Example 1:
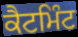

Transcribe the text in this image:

ਕੈਟਮਿੰਟ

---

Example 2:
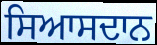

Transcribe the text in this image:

ਸਿਆਸਦਾਨ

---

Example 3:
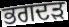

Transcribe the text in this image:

ਭਗਦੜ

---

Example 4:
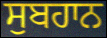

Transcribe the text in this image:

ਸੁਬਹਾਨ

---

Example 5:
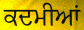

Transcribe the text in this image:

ਕਦਮੀਆਂ